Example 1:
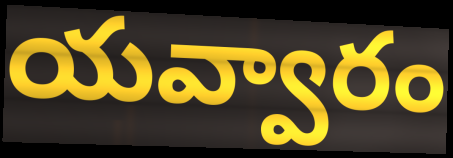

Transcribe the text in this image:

యవ్వారం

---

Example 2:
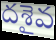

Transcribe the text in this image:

దశైవ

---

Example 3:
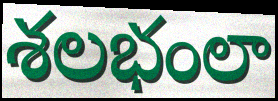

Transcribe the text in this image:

శలభంలా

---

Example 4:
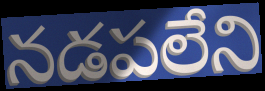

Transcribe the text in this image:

నడపలేని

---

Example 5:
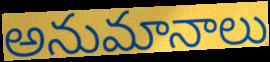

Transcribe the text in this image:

అనుమానాలు